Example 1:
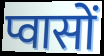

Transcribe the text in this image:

प्वासों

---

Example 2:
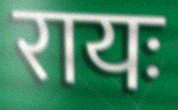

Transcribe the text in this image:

रायः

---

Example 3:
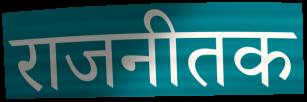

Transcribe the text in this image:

राजनीतक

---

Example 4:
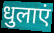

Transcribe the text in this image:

धुलाएं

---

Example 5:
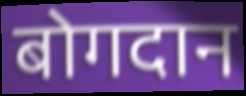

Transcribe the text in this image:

बोगदान